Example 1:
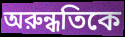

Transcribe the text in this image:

অরুন্ধতিকে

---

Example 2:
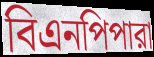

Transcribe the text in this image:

বিএনপিপারা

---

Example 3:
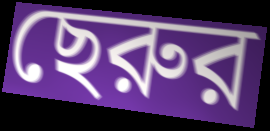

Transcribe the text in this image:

ছেরুর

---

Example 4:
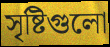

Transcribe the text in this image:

সৃষ্টিগুলো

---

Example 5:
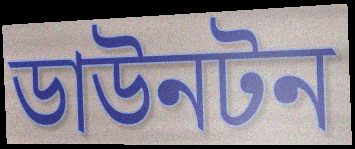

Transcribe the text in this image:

ডাউনটন